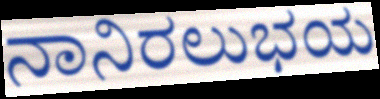
ನಾನಿರಲುಭಯ